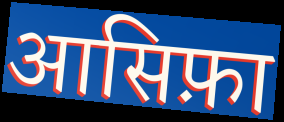
आसिफ़ा